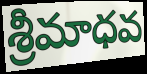
శ్రీమాధవ